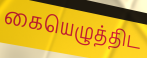
கையெழுத்திட